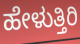
ಹೇಳುತ್ತಿರಿ